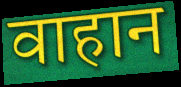
वाहान